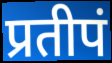
प्रतीपं